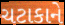
ચટાકાને